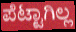
ಪೆಟ್ಟಾಗಿಲ್ಲ